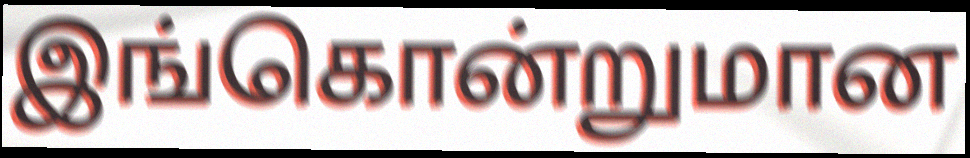
இங்கொன்றுமான